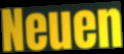
Neuen